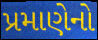
પ્રમાણેનો